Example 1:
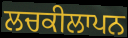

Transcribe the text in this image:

ਲਚਕੀਲਾਪਨ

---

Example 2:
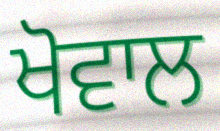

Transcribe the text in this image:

ਖੋਵਾਲ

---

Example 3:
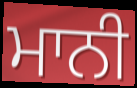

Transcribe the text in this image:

ਮਾਨੀ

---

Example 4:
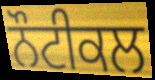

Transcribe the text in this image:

ਨੌਟੀਕਲ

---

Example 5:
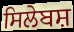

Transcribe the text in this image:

ਸਿਲੇਬਸ਼